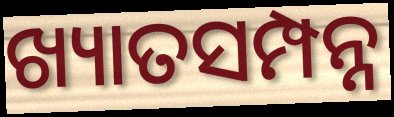
ଖ୍ୟାତସମ୍ପନ୍ନ